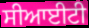
ਸੀਆਈਟੀ